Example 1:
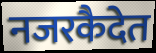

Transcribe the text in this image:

नजरकैदेत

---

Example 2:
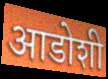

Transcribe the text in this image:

आडोशी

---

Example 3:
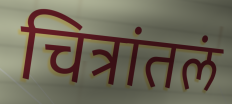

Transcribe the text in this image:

चित्रांतलं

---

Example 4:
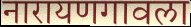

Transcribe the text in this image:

नारायणगावला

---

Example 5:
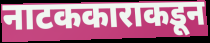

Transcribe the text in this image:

नाटककाराकडून